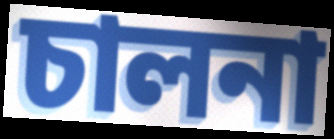
চালনা